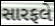
સારફલે